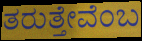
ತರುತ್ತೇವೆಂಬ